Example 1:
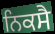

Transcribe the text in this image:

ਨਿਕਸੈ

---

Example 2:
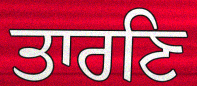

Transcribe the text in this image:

ਤਾਰਣਿ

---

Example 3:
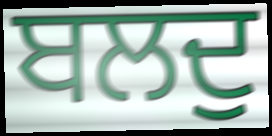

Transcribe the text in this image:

ਬਲਦੁ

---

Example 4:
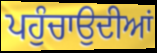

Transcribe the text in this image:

ਪਹੁੰਚਾਉਦੀਆਂ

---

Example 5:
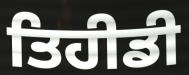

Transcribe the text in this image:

ਤਿਹੀਡੀ